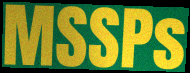
MSSPs